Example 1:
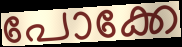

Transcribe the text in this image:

പോക്കേ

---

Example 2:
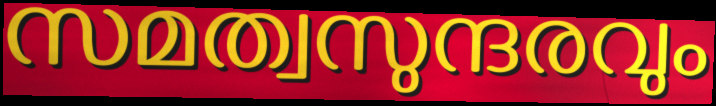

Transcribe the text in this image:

സമത്വസുന്ദരവും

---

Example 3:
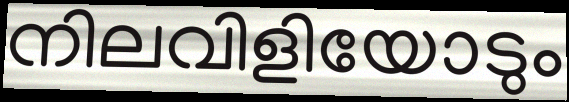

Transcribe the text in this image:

നിലവിളിയോടും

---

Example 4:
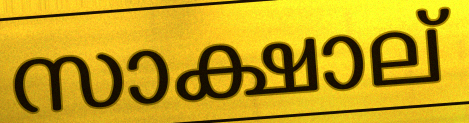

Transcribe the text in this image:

സാക്ഷാല്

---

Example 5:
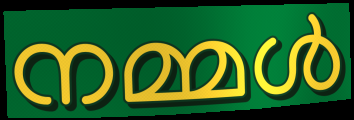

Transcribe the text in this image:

നമ്മൾ